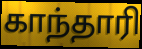
காந்தாரி